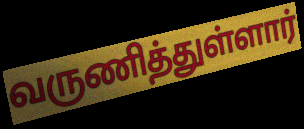
வருணித்துள்ளார்